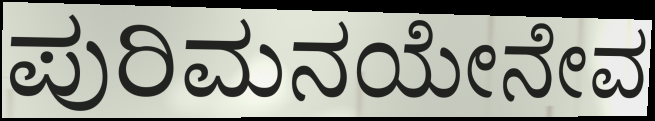
ಪುರಿಮನಯೇನೇವ